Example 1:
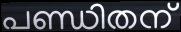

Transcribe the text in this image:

പണ്ഡിതന്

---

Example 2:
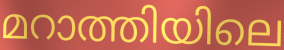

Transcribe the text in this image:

മറാത്തിയിലെ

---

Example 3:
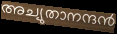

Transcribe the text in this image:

അച്യുതാനന്ദൻ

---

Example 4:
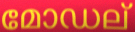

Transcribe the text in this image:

മോഡല്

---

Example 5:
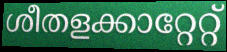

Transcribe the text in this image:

ശീതളക്കാറ്റേറ്റ്